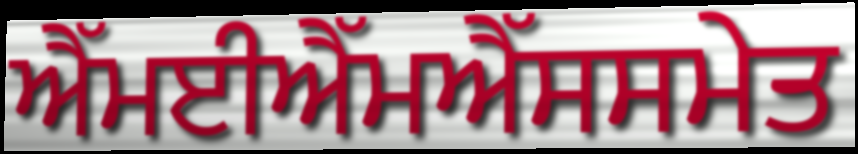
ਐੱਮਈਐੱਮਐੱਸਸਮੇਤ